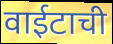
वाईटाची